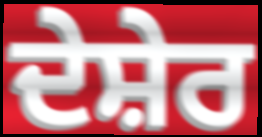
ਦੇਸ਼ੇਰ